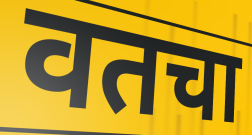
वतचा